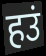
हउं